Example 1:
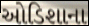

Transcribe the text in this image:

ઓડિશાના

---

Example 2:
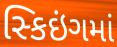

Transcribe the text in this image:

સ્કિઇંગમાં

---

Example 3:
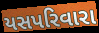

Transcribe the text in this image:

યસપરિવારા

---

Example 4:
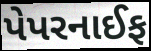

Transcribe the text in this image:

પેપરનાઈફ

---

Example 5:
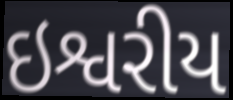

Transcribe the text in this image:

ઇશ્વરીય